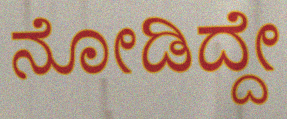
ನೋಡಿದ್ದೇ